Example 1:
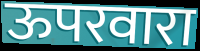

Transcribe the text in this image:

ऊपरवारा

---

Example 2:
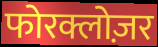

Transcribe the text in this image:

फोरक्लोज़र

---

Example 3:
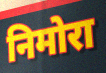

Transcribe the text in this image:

निमोरा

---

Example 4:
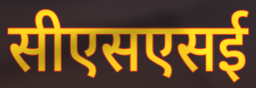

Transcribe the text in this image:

सीएसएसई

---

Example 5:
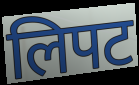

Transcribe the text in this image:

लिपट